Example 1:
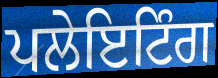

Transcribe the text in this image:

ਪਲੇਇਟਿੰਗ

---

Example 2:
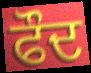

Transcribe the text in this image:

ਫੌਦ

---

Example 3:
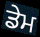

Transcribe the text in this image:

ਡੇਮ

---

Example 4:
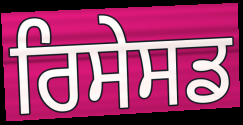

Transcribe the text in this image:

ਰਿਸੇਸਡ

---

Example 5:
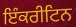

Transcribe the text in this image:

ਇੰਕਰੀਟਿਨ